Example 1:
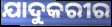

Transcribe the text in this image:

ଯାଦୁକରୀର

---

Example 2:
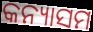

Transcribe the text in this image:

କନ୍ୟାସମ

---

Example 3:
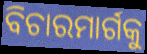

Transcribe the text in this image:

ବିଚାରମାର୍ଗକୁ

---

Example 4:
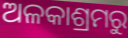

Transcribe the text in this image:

ଅଳକାଶ୍ରମରୁ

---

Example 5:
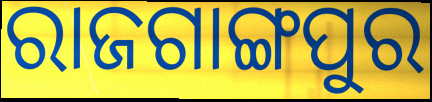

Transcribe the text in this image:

ରାଜଗାଙ୍ଗପୁର